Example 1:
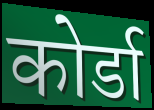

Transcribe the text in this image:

कोर्डा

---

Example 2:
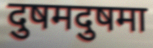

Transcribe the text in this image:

दुषमदुषमा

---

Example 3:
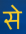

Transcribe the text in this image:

से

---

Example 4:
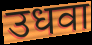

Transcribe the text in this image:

उधवा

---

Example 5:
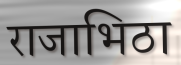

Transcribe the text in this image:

राजाभिठा